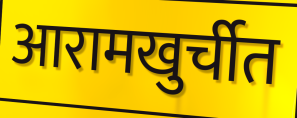
आरामखुर्चीत